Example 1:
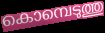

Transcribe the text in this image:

കൊമ്പെടുത്തു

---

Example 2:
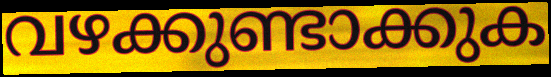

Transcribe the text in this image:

വഴക്കുണ്ടാക്കുക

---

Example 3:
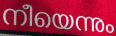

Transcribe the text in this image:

നീയെന്നും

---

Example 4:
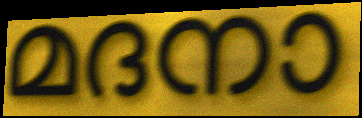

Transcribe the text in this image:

മദനാ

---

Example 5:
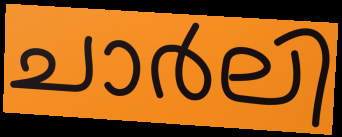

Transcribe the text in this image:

ചാർലി